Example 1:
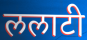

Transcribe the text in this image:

ललाटी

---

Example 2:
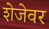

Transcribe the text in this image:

शेजेवर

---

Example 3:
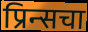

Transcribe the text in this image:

प्रिन्सचा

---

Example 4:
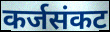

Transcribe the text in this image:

कर्जसंकट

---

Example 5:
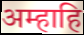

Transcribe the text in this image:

अम्हाहि